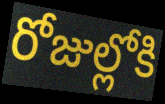
రోజుల్లోకి